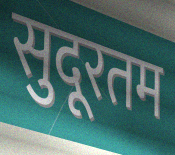
सुदूरतम